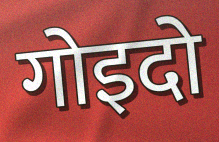
गोइदो